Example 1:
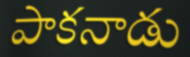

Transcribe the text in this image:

పాకనాడు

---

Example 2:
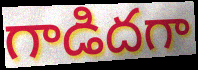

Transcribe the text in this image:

గాడిదగా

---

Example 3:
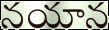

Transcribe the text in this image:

నయాన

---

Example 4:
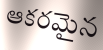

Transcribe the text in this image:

ఆకరమైన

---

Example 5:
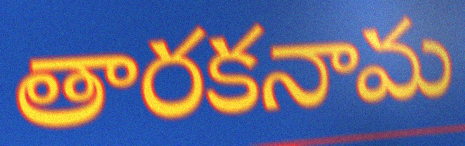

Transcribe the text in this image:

తారకనామ